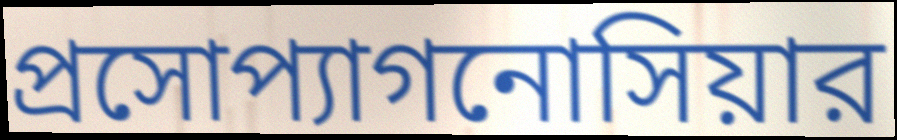
প্রসোপ্যাগনোসিয়ার